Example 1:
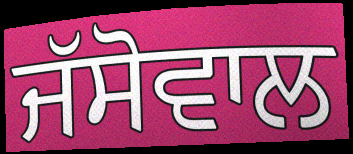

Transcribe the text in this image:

ਜੱਸੋਵਾਲ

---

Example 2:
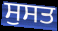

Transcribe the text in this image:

ਸੁਸਤ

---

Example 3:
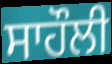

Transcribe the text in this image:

ਸਾਹੌਲੀ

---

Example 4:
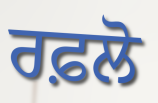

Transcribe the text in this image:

ਰਫ਼ਲੋ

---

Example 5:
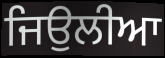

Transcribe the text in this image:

ਜਿਉਲੀਆ